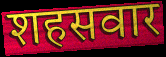
शहसवार